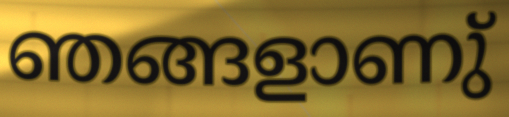
ഞങ്ങളാണു്